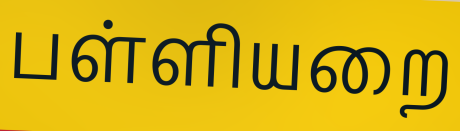
பள்ளியறை